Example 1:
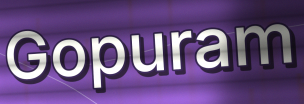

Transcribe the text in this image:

Gopuram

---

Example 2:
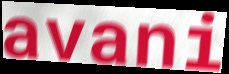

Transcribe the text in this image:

avani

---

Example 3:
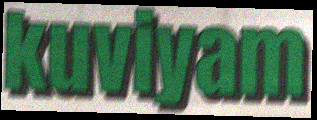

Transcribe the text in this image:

kuviyam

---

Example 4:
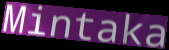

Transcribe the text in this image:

Mintaka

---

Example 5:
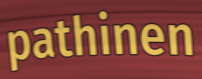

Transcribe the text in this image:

pathinen